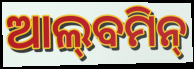
ଆଲ୍‌ବମିନ୍